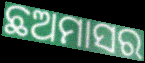
ଛଅମାସର